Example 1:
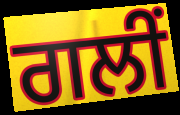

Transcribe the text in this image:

ਗਲੀਂ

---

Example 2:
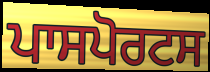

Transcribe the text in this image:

ਪਾਸਪੋਰਟਸ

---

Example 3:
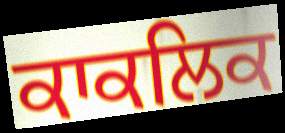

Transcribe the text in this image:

ਕਾਕਲਿਕ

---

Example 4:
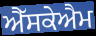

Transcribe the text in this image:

ਐੱਸਕੇਐਮ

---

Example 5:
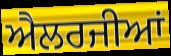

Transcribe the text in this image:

ਐਲਰਜੀਆਂ